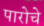
पारोचे